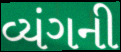
વ્યંગની